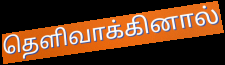
தெளிவாக்கினால்